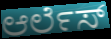
ಆರ್ಲೆಸ್